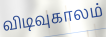
விடிவுகாலம்